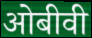
ओबीवी